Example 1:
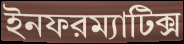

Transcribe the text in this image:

ইনফরম্যাটিক্স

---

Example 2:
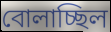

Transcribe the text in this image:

বোলাচ্ছিল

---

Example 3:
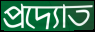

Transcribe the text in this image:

প্রদ্যোত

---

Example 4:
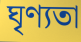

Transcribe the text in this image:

ঘৃণ্যতা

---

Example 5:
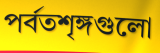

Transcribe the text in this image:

পর্বতশৃঙ্গগুলো